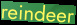
reindeer